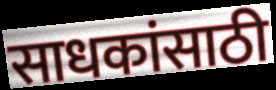
साधकांसाठी